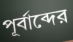
পূর্বাব্দের